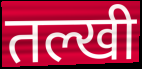
तल्‍खी